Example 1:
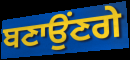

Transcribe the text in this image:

ਬਣਾਉਂਣਗੇ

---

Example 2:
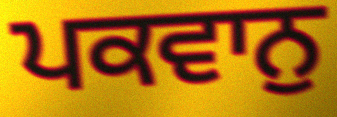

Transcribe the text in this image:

ਪਕਵਾਨੁ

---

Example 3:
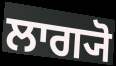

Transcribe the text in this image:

ਲਾਗ੍ਯੋ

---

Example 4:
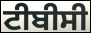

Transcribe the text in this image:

ਟੀਬੀਸੀ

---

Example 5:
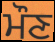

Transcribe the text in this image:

ਮੌਣ